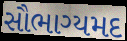
સૌભાગ્યમદ